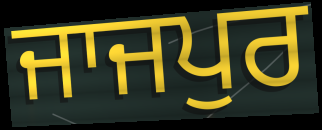
ਜਾਜਪੁਰ